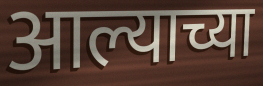
आल्याच्या